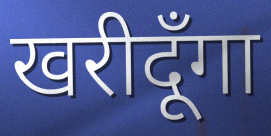
खरीदूँगा